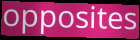
opposites